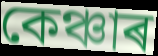
কেঞ্চাৰ